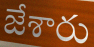
జేశారు